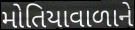
મોતિયાવાળાને